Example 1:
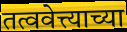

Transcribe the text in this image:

तत्ववेत्त्याच्या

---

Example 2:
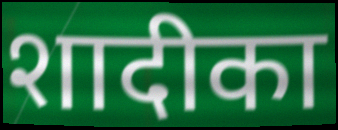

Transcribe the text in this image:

शादीका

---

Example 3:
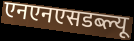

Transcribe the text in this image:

एनएनएसडब्ल्यू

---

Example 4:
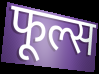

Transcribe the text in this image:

फूल्स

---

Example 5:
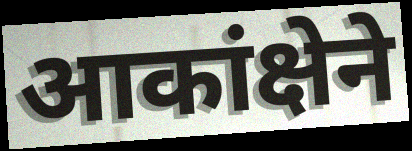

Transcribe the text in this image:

आकांक्षेने